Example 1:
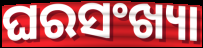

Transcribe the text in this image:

ଘରସଂଖ୍ୟା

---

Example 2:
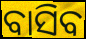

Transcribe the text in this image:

ବାସିବ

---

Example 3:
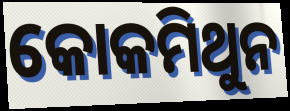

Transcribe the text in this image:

କୋକମିଥୁନ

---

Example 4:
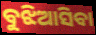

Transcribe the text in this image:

ବୁଝିଆସିବା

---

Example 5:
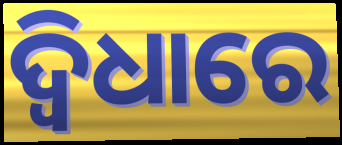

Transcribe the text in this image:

ଦ୍ୱିଧାରେ